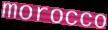
morocco